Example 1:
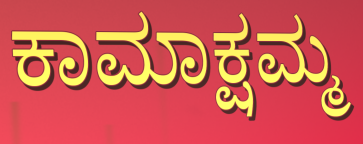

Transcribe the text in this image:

ಕಾಮಾಕ್ಷಮ್ಮ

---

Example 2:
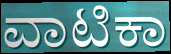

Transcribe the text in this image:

ವಾಟಿಕಾ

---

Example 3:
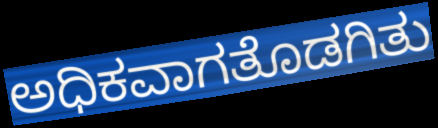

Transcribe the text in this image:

ಅಧಿಕವಾಗತೊಡಗಿತು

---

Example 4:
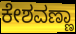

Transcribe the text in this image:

ಕೇಶವಣ್ಣಾ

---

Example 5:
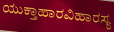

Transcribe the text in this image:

ಯುಕ್ತಾಹಾರವಿಹಾರಸ್ಯ